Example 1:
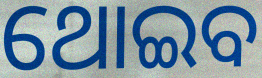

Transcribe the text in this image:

ଥୋଇବ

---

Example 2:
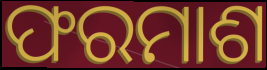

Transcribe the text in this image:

ଫରମାଶ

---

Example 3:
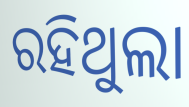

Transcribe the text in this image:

ରହିଥୁଲା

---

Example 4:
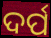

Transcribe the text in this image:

ଦର୍ପ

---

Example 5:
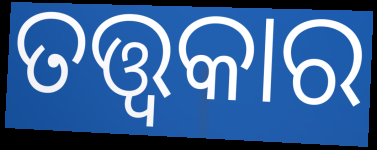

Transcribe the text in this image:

ତତ୍ତ୍ୱକାର